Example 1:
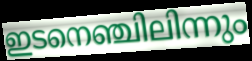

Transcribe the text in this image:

ഇടനെഞ്ചിലിന്നും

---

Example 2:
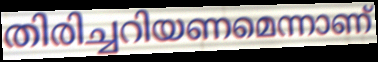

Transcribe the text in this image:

തിരിച്ചറിയണമെന്നാണ്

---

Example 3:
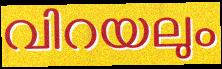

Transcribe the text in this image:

വിറയലും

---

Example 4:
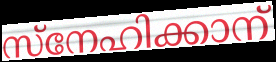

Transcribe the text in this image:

സ്നേഹിക്കാന്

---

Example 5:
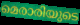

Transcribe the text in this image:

മെരാരിയുടെ